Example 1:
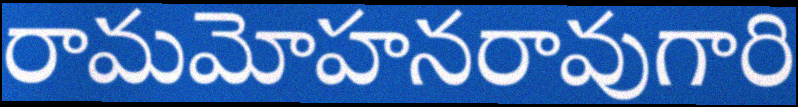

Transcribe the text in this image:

రామమోహనరావుగారి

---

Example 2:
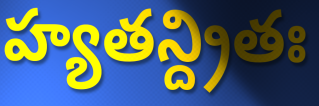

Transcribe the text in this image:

హ్యతన్ద్రితః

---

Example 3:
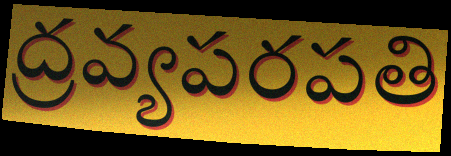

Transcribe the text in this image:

ద్రవ్యపరపతి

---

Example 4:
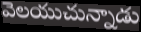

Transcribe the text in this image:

వెలయుచున్నాడు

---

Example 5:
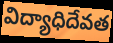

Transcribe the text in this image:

విద్యాధిదేవత